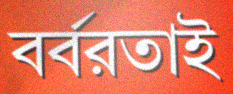
বর্বরতাই